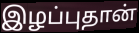
இழப்புதான்